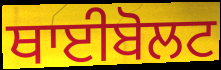
ਥਾਈਬੋਲਟ